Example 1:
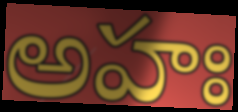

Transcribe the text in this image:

అహః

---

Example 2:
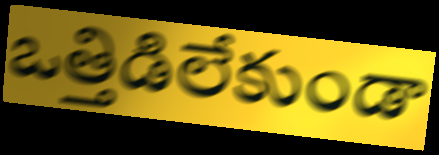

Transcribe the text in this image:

ఒత్తిడిలేకుండా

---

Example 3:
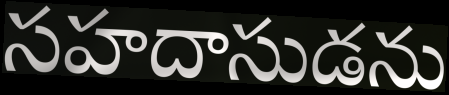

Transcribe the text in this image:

సహదాసుడను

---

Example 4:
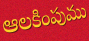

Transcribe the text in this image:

ఆలకింపుము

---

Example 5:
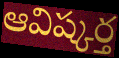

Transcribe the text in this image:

ఆవిష్కర్త